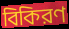
বিকিরণ